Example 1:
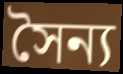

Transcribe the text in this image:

সৈন্য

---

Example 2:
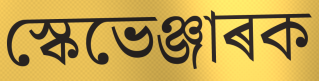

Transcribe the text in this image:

স্কেভেঞ্জাৰক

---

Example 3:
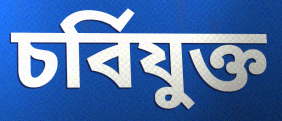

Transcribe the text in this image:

চৰ্বিযুক্ত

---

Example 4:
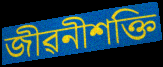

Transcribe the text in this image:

জীৱনীশক্তি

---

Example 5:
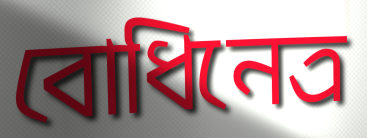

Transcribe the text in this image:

বোধিনেত্ৰ